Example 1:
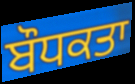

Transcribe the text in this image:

ਬੌਧਕਤਾ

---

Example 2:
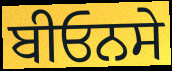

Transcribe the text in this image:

ਬੀਓਨਸੇ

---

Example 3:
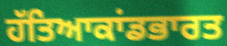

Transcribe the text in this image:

ਹੱਤਿਆਕਾਂਡਭਾਰਤ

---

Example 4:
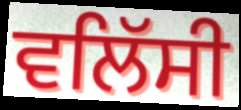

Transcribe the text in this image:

ਵਲਿੱਸੀ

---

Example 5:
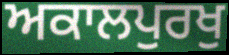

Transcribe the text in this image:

ਅਕਾਲਪੁਰਖੁ